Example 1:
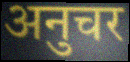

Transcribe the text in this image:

अनुचर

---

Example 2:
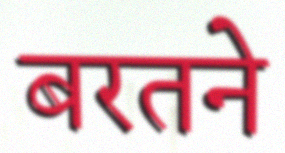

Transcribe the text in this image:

बरतने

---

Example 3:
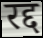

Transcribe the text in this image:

रद्द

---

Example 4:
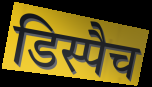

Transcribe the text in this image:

डिस्पैच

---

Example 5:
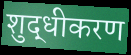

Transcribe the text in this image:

शुद्धीकरण